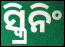
ସ୍କ୍ରିନିଂ